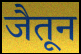
जैतून